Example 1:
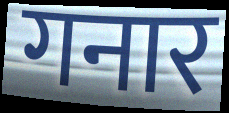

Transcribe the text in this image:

गनार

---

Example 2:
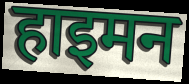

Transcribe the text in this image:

हाइमन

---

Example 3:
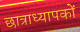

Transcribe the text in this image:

छात्राध्यापकों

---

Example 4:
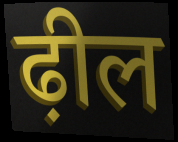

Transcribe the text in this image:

ढ़ील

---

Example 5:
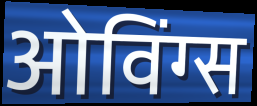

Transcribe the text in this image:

ओविंग्स